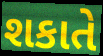
શકાતે